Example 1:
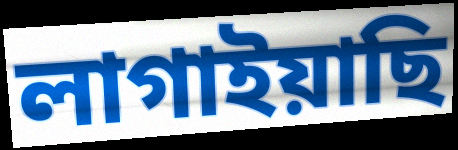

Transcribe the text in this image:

লাগাইয়াছি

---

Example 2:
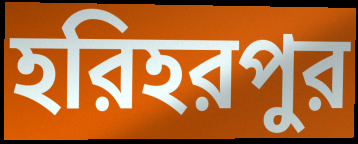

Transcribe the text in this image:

হরিহরপুর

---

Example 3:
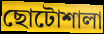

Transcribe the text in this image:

ছোটোশালা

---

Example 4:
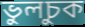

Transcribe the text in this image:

ভুলচুক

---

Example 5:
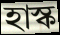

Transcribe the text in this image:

হাস্ক